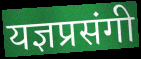
यज्ञप्रसंगी